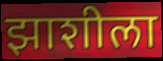
झाशीला